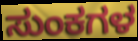
ಸುಂಕಗಳ